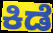
ಕಿಡೆ